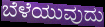
ಬೆಳೆಯುವುದು